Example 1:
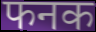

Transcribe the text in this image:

फनक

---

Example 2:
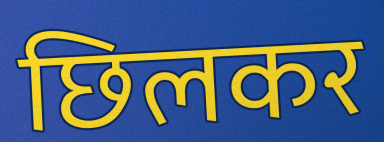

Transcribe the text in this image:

छिलकर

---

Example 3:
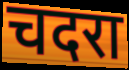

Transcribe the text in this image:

चदरा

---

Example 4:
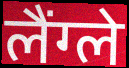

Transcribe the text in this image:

लैंग्ले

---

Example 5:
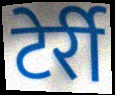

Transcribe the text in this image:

टेर्री